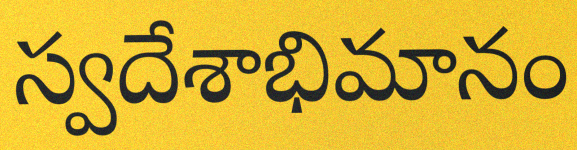
స్వదేశాభిమానం